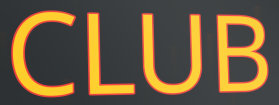
CLUB